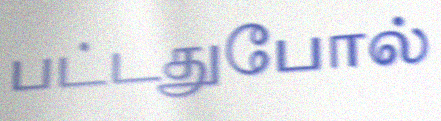
பட்டதுபோல்